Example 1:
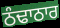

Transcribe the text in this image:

ਠੰਢਾਠਾਰ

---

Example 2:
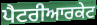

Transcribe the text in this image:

ਪੈਟਰੀਆਰਕੇਟ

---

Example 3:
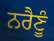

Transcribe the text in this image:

ਨਰੈਣੂੰ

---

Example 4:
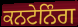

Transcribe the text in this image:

ਕਨਟੇਨਿੰਗ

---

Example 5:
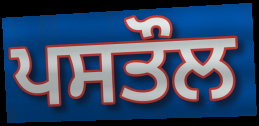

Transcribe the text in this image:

ਪਸਤੌਲ